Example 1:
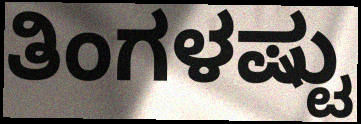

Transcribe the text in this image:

ತಿಂಗಳಷ್ಟು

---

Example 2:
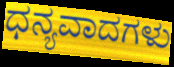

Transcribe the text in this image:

ಧನ್ಯವಾದಗಳು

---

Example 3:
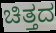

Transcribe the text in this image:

ಚಿತ್ತದ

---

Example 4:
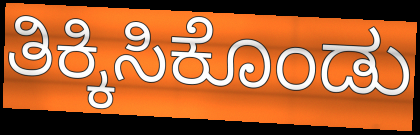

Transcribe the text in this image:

ತಿಕ್ಕಿಸಿಕೊಂಡು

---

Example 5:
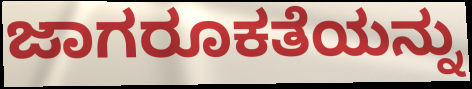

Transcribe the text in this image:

ಜಾಗರೂಕತೆಯನ್ನು